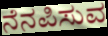
ನೆನಪಿಸುವ